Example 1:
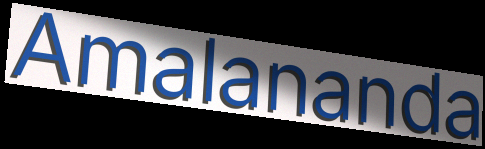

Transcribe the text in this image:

Amalananda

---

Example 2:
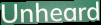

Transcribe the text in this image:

Unheard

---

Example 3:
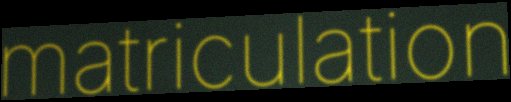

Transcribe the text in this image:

matriculation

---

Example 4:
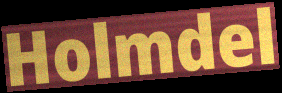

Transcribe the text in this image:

Holmdel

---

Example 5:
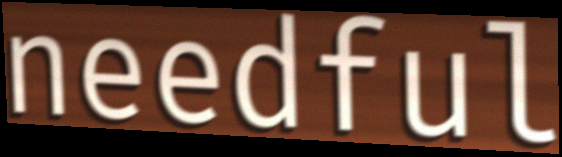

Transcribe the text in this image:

needful